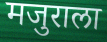
मजुराला